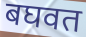
बघवत